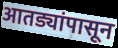
आतड्यांपासून